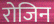
रोजिन